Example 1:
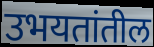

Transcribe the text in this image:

उभयतांतील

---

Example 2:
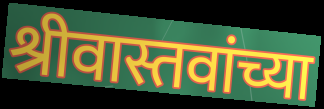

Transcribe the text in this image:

श्रीवास्तवांच्या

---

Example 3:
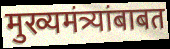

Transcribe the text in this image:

मुख्यमंत्र्यांबाबत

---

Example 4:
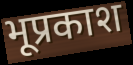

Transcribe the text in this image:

भूप्रकाश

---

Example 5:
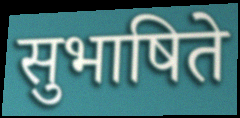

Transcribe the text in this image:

सुभाषिते